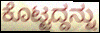
ಕೊಟ್ಟದ್ದನ್ನು